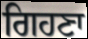
ਗਿਹਣਾ